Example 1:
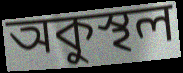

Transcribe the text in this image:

অকুস্থল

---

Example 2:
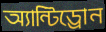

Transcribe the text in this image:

অ্যান্টিড্রোন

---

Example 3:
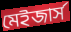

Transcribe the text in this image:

মেইজার্স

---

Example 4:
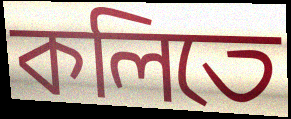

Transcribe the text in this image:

কলিতে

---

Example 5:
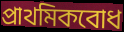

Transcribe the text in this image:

প্রাথমিকবোধ